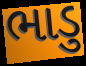
ભાડુ